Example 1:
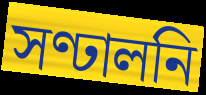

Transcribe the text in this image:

সণ্ঢালনি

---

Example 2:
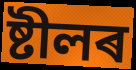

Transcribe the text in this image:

ষ্টীলৰ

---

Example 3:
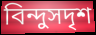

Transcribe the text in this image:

বিন্দুসদৃশ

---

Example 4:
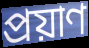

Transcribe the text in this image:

প্ৰয়াণ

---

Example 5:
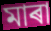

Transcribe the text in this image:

মাৰা